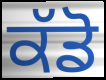
ਕੱਡੋ